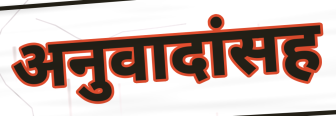
अनुवादांसह